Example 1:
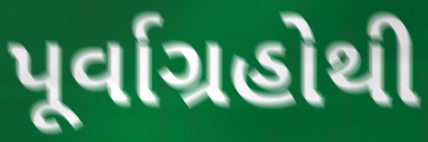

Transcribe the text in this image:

પૂર્વાગ્રહોથી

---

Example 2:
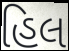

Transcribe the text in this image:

હિલ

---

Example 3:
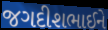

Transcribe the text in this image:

જગદીશભાઈને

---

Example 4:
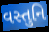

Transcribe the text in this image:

વસ્તુનિ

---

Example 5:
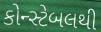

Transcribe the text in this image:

કોન્સ્ટેબલથી